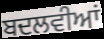
ਬਦਲਵੀਆਂ